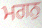
ਮਗਨੁ